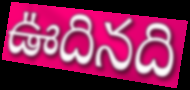
ఊదినది